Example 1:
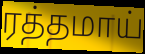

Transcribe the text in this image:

ரத்தமாய்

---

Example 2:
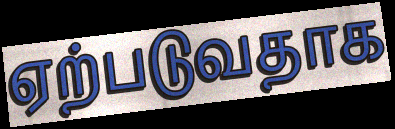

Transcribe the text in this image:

ஏற்படுவதாக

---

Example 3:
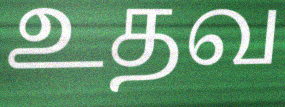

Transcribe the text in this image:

உதவ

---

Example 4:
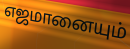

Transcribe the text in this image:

எஜமானையும்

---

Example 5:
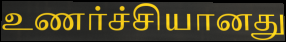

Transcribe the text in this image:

உணர்ச்சியானது